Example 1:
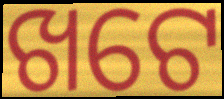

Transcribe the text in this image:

ଖଟେ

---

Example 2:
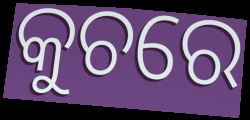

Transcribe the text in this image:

କୁଚରେ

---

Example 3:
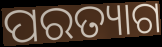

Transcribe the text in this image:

ପରତ୍ୟାଗ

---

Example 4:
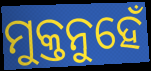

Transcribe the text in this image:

ମୁକ୍ତନୁହେଁ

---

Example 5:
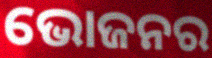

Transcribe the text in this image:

ଭୋଜନର